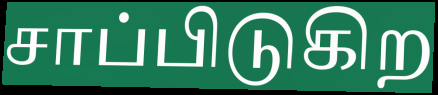
சாப்பிடுகிற